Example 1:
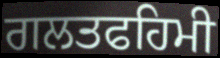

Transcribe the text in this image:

ਗਲਤਫਹਿਮੀ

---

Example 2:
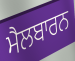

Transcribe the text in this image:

ਮੈਲਬਾਰਨ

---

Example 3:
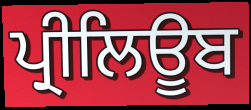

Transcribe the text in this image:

ਪ੍ਰੀਲਿਊਬ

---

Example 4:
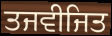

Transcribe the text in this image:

ਤਜਵੀਜਿਤ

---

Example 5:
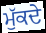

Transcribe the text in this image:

ਮੁੱਕਦੇ